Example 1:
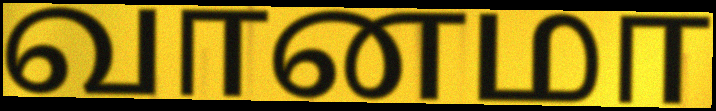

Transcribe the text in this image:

வானமா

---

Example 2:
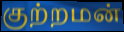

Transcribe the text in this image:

குற்றமன்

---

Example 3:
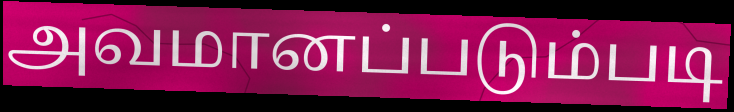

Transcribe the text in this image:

அவமானப்படும்படி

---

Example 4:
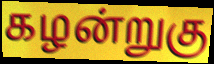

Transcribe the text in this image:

கழன்றுகு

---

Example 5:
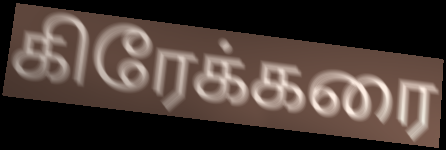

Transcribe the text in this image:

கிரேக்கரை